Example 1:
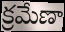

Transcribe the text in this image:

క్రమేణా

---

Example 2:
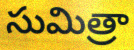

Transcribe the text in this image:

సుమిత్రా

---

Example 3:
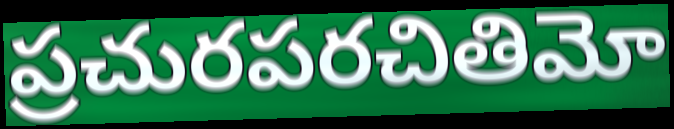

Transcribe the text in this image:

ప్రచురపరచితిమో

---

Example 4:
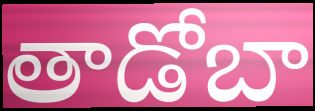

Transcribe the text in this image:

తాడోబా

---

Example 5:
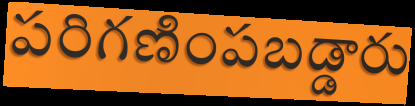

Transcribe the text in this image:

పరిగణింపబడ్డారు